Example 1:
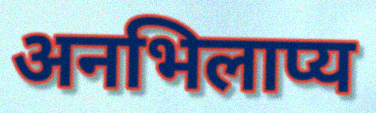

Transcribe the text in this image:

अनभिलाप्य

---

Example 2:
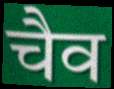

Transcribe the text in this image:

चैव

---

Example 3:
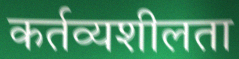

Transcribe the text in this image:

कर्तव्यशीलता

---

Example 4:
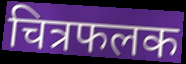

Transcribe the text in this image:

चित्रफलक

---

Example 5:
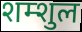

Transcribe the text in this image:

शम्शुल